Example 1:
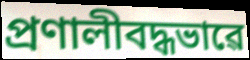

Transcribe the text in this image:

প্ৰণালীবদ্ধভাৱে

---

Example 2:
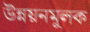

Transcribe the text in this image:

উন্নয়নমূলক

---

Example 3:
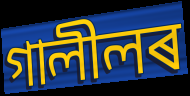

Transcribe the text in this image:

গালীলৰ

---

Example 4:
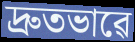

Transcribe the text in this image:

দ্ৰুতভাৱে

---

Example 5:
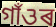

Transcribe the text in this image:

গাঁওৰ